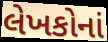
લેખકોનાં